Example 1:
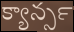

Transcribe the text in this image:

క్యాన్సర్‍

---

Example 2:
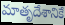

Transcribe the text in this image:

మాతృదేశానికే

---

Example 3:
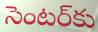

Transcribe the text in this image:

సెంటర్‌కు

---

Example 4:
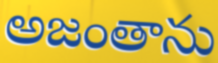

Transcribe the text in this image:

అజంతాను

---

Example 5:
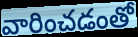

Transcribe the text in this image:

వారించడంతో